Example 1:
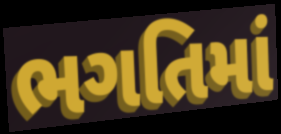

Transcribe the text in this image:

ભગતિમાં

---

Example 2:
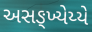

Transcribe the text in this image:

અસઙ્ખ્યેય્યે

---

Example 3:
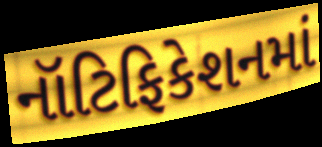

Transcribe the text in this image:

નૉટિફિકેશનમાં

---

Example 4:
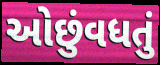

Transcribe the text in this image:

ઓછુંવધતું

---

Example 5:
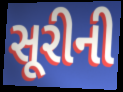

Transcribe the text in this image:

સૂરીની